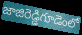
జాజిరెడ్డిగూడెంలో